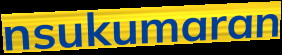
nsukumaran